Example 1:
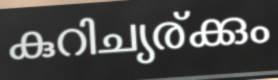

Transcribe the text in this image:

കുറിച്യര്ക്കും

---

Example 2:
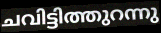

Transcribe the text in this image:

ചവിട്ടിത്തുറന്നു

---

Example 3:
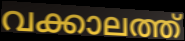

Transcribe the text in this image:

വക്കാലത്ത്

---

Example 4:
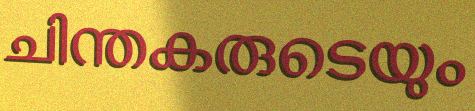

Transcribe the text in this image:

ചിന്തകരുടെയും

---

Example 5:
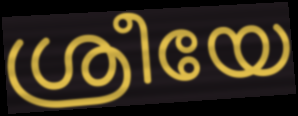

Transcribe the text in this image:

ശ്രീയേ